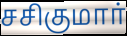
சசிகுமார்